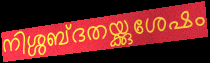
നിശ്ശബ്ദതയ്ക്കുശേഷം